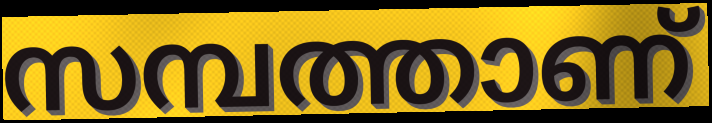
സമ്പത്താണ്